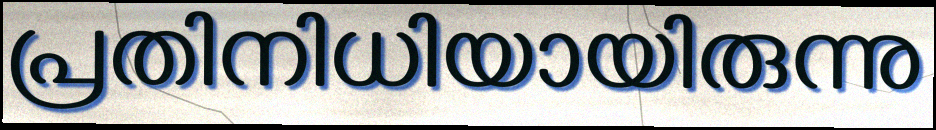
പ്രതിനിധിയായിരുന്നു